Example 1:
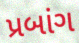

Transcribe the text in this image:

પ્રબાંગ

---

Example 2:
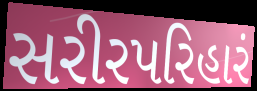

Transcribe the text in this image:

સરીરપરિહારં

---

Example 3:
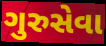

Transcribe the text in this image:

ગુરુસેવા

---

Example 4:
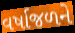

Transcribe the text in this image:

વર્ષાજળને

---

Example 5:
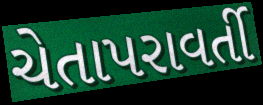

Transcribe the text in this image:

ચેતાપરાવર્તી